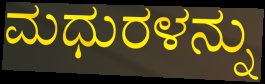
ಮಧುರಳನ್ನು